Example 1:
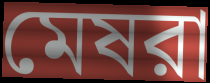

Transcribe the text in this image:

মেষরা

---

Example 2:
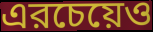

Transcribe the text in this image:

এরচেয়েও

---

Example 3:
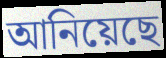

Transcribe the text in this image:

আনিয়েছে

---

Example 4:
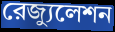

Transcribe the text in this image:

রেজ্যুলেশন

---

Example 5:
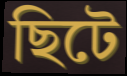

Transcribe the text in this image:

ছিটে